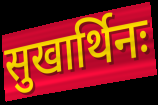
सुखार्थिनः